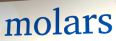
molars